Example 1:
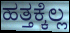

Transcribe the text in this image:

ಹತ್ತಕ್ಕೆಲ್ಲ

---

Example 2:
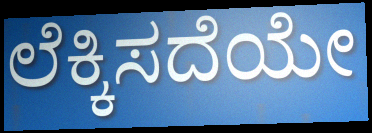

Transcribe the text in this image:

ಲೆಕ್ಕಿಸದೆಯೇ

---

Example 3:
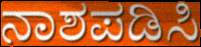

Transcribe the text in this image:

ನಾಶಪಡಿಸಿ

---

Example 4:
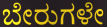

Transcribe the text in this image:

ಬೇರುಗಳೇ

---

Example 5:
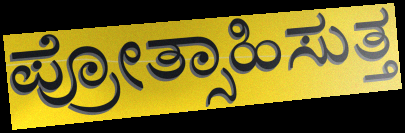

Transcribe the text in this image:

ಪ್ರೋತ್ಸಾಹಿಸುತ್ತ